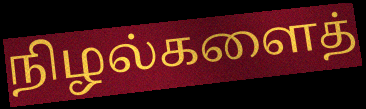
நிழல்களைத்